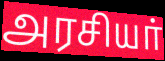
அரசியர்